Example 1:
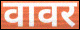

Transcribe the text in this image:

वावर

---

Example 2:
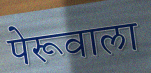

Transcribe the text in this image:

पेरूवाला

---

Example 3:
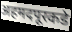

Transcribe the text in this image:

अहमदपूरकडे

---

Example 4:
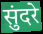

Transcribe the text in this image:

सुंदरे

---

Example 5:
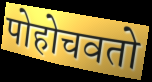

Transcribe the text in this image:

पोहोचवतो